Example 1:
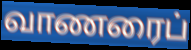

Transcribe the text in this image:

வாணரைப்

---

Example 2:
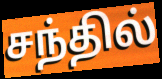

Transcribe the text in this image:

சந்தில்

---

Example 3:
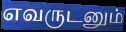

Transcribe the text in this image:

எவருடனும்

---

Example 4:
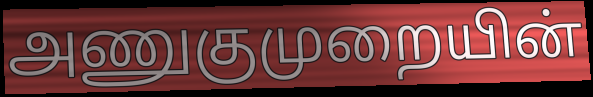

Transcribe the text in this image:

அணுகுமுறையின்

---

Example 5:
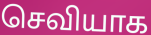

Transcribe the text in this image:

செவியாக